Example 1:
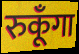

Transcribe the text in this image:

रुकूँगा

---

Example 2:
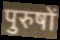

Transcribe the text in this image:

पुरुषों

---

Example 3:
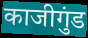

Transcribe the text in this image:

काजीगुंड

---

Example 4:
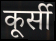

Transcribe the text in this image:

कूर्सी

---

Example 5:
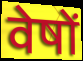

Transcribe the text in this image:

वेषों